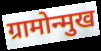
ग्रामोन्मुख